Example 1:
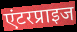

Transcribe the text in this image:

एंटरप्राइज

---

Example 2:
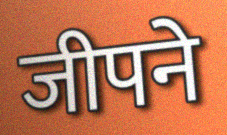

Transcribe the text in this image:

जीपने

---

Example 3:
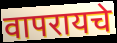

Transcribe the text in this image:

वापरायचे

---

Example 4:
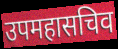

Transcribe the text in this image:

उपमहासचिव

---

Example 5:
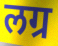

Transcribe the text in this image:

लग्र